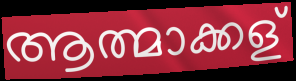
ആത്മാക്കള്